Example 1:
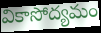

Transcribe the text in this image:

వికాసోద్యమం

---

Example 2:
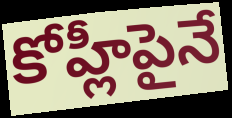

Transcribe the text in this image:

కోహ్లీపైనే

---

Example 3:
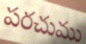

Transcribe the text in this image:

పరచుము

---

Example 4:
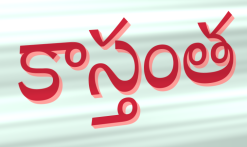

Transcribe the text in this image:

కాస్తంత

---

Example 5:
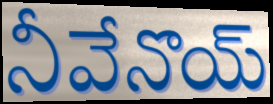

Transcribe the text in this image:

నీవేనొయ్